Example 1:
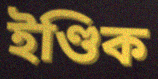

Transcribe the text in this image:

ইণ্ডিক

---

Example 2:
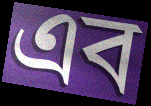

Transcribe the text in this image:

এব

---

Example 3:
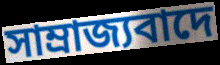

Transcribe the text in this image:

সাম্ৰাজ্যবাদে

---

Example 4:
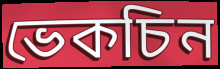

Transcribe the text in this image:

ভেকচিন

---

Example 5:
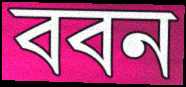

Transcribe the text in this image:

ববন